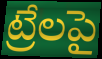
ట్రేలపై